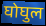
घोघुल